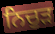
ਨਿਚੁੜ